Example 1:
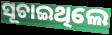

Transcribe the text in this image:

ସୂଚାଇଥିଲେ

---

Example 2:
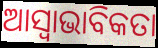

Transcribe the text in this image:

ଆସ୍ବାଭାବିକତା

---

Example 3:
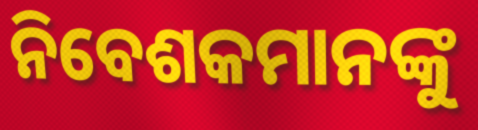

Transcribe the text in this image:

ନିବେଶକମାନଙ୍କୁ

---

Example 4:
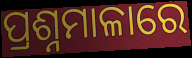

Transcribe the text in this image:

ପ୍ରଶ୍ନମାଳାରେ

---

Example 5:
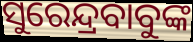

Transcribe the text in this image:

ସୁରେନ୍ଦ୍ରବାବୁଙ୍କ